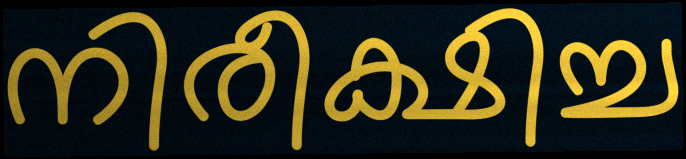
നിരീക്ഷിച്ച